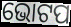
ଭୋଟପ